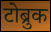
टोब्रुक